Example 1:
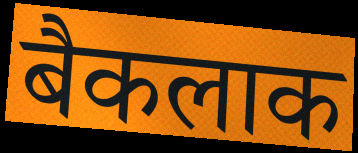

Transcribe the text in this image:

बैकलाक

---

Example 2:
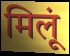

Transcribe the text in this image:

मिलूं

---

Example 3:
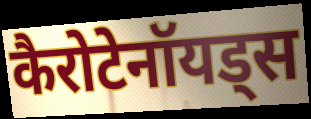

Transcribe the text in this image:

कैरोटेनॉयड्स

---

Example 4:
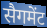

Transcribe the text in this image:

सैगमेंट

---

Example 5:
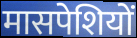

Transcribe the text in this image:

मासपेशियों